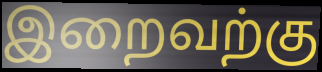
இறைவற்கு